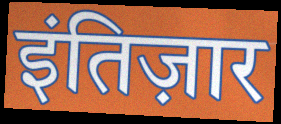
इंतिज़ार